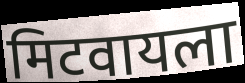
मिटवायला